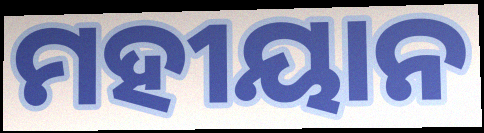
ମହୀୟାନ